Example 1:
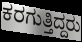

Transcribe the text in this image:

ಕರಗುತ್ತಿದ್ದರು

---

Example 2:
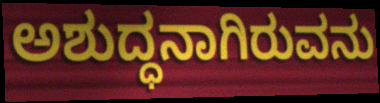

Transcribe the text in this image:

ಅಶುದ್ಧನಾಗಿರುವನು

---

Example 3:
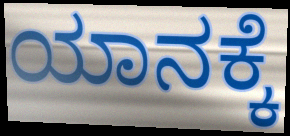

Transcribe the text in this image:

ಯಾನಕ್ಕೆ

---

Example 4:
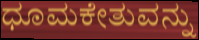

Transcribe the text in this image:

ಧೂಮಕೇತುವನ್ನು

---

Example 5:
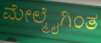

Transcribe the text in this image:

ಮೇಲ್ಮೈಗಿಂತ